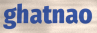
ghatnao